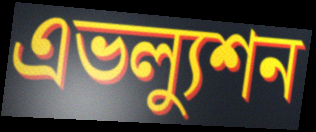
এভল্যুশন